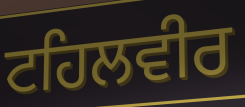
ਟਹਿਲਵੀਰ